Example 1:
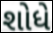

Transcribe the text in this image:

શોધે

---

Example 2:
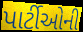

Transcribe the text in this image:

પાર્ટીઓની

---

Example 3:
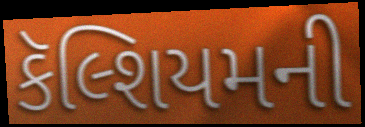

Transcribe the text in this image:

કૅલ્શિયમની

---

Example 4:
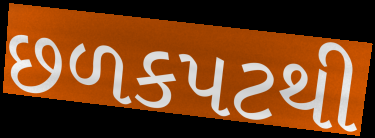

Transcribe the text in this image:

છળકપટથી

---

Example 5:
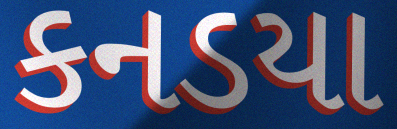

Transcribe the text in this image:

કનડયા